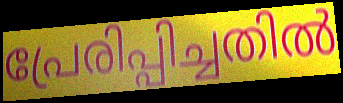
പ്രേരിപ്പിച്ചതിൽ